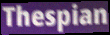
Thespian